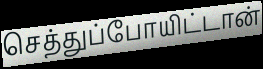
செத்துப்போயிட்டான்